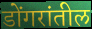
डोंगरांतील